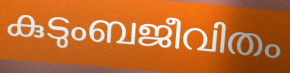
കുടുംബജീവിതം